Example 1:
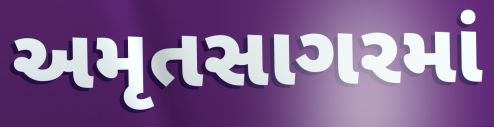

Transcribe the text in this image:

અમૃતસાગરમાં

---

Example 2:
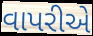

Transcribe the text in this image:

વાપરીએ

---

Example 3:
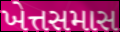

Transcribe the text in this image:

ખેત્તસમાસ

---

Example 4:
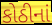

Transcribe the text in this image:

કોઠીનાં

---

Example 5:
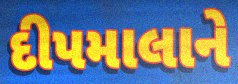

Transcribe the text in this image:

દીપમાલાને